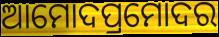
ଆମୋଦପ୍ରମୋଦର